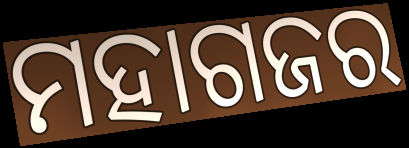
ମହାଗଜର